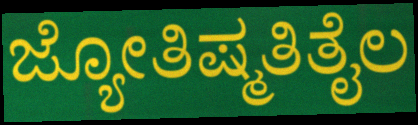
ಜ್ಯೋತಿಷ್ಮತಿತೈಲ